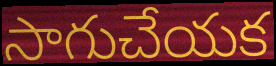
సాగుచేయక